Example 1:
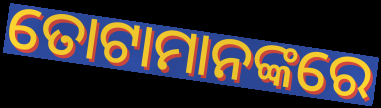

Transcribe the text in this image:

ତୋଟାମାନଙ୍କରେ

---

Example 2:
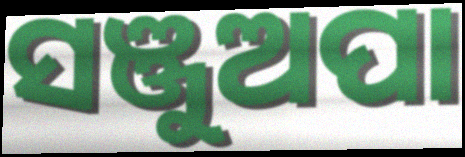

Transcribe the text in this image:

ସଞ୍ଜୁଅପା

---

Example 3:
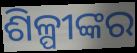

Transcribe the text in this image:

ଶିଳ୍ପୀଙ୍କର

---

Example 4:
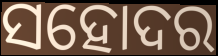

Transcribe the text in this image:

ସହୋଦର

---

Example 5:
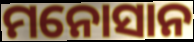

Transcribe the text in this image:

ମନୋସାନ